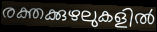
രക്തക്കുഴലുകളിൽ